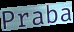
Praba